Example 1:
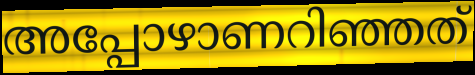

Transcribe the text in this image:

അപ്പോഴാണറിഞ്ഞത്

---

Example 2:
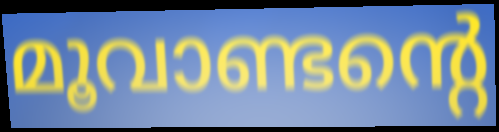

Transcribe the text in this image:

മൂവാണ്ടന്റെ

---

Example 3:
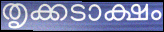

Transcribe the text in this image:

തൃക്കടാക്ഷം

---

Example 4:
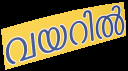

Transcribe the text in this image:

വയറിൽ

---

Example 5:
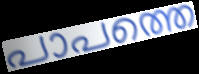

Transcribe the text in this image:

പാപത്തെ